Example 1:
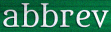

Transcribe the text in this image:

abbrev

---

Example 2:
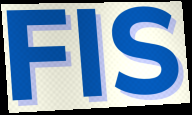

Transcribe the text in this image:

FIS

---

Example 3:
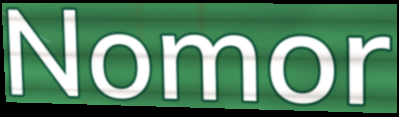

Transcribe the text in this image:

Nomor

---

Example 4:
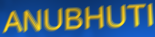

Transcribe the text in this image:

ANUBHUTI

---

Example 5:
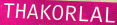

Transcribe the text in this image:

THAKORLAL